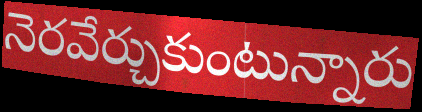
నెరవేర్చుకుంటున్నారు